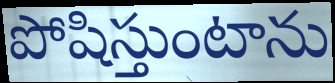
పోషిస్తుంటాను